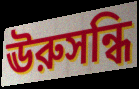
ঊরুসন্ধি